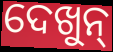
ଦେଖୁନ୍